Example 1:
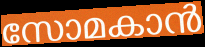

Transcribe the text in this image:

സോമകാൻ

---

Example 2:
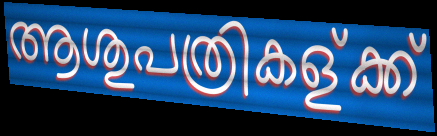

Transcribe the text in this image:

ആശുപത്രികള്ക്ക്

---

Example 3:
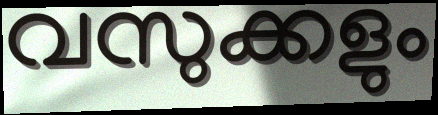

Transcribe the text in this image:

വസുക്കളും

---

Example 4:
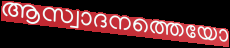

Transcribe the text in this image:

ആസ്വാദനത്തെയോ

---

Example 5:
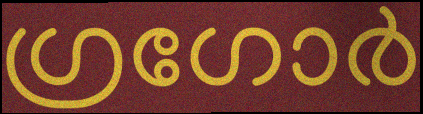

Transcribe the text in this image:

ഗ്രഗോർ